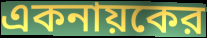
একনায়কের